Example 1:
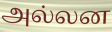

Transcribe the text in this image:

அல்லன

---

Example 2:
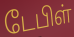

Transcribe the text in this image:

டேபிள்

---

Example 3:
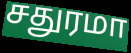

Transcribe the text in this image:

சதுரமா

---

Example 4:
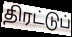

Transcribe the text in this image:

திரட்டுப்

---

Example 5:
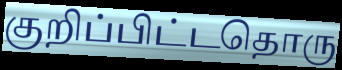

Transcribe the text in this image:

குறிப்பிட்டதொரு